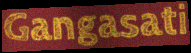
Gangasati